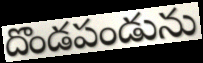
దొండపండును